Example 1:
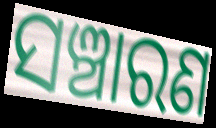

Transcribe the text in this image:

ସଞ୍ଚାରଣ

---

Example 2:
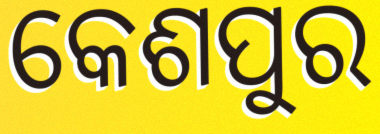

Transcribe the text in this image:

କେଶପୁର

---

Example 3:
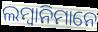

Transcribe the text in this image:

ଲମ୍ବାନିମାନେ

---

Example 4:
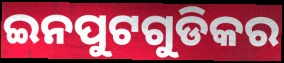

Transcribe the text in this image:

ଇନପୁଟଗୁଡିକର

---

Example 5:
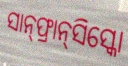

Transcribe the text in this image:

ସାନ୍‌ଫ୍ରାନ୍‌ସିସ୍କୋ